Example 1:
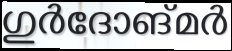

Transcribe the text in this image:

ഗുർദോങ്മർ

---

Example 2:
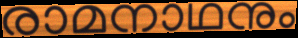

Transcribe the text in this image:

രാമനാഥനും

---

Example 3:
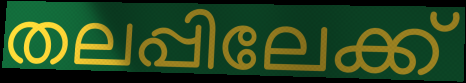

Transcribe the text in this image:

തലപ്പിലേക്ക്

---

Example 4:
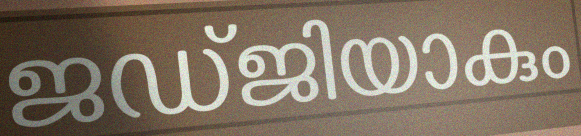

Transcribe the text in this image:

ജഡ്ജിയാകും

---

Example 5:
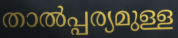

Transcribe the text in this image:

താൽപ്പര്യമുള്ള